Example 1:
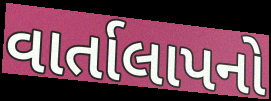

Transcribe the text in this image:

વાર્તાલાપનો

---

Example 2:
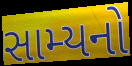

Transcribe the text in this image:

સામ્યનો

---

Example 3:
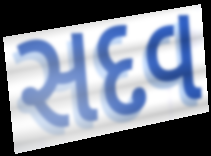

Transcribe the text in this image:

સદવ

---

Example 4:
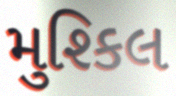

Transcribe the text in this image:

મુશ્કિલ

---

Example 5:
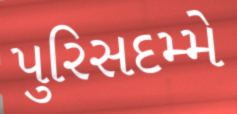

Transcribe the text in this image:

પુરિસદમ્મે